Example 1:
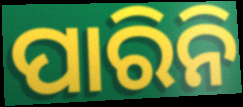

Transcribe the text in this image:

ପାରିନି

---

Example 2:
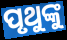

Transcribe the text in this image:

ପୃଥୁଙ୍କୁ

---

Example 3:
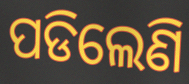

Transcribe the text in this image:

ପଡିଲେଣି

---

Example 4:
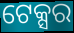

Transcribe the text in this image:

ଟେକ୍ସର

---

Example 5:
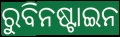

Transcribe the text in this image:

ରୁବିନଷ୍ଟାଇନ